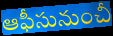
ఆఫీసునుంచీ